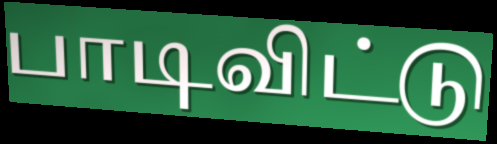
பாடிவிட்டு